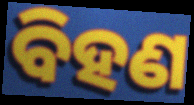
ବିହଣ